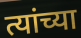
त्यांच्या